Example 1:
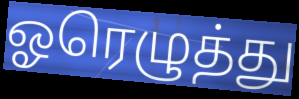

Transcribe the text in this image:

ஓரெழுத்து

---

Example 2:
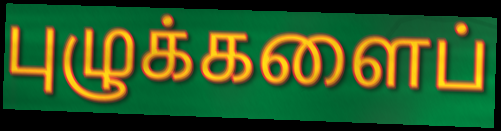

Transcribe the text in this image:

புழுக்களைப்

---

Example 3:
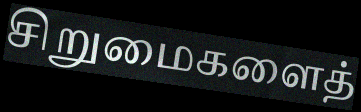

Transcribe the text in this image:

சிறுமைகளைத்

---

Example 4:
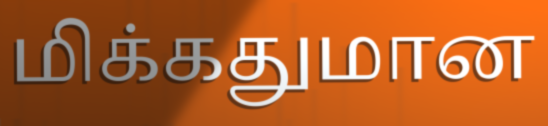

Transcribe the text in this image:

மிக்கதுமான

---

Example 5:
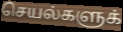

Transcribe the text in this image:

செயல்களுக்